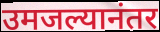
उमजल्यानंतर